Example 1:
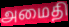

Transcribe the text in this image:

அமைதி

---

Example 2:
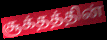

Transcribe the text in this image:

சூக்தத்தின்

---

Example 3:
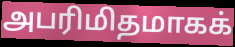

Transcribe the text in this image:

அபரிமிதமாகக்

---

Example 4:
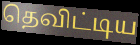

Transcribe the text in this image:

தெவிட்டிய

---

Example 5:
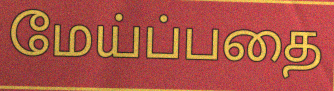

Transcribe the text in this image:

மேய்ப்பதை